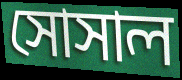
সোসাল